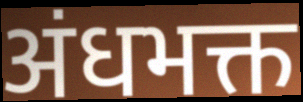
अंधभक्त